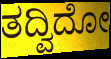
ತದ್ವಿದೋ